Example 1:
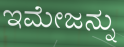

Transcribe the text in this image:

ಇಮೇಜನ್ನು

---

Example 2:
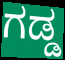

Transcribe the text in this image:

ಗಡ್ಡ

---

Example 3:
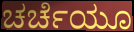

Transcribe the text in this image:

ಚರ್ಚೆಯೂ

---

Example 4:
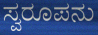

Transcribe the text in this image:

ಸ್ವರೂಪನು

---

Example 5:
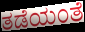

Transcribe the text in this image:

ತಡೆಯಂತೆ